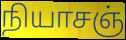
நியாசஞ்